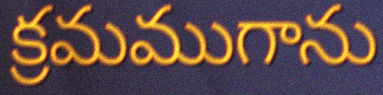
క్రమముగాను